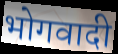
भोगवादी